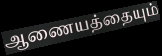
ஆணையத்தையும்